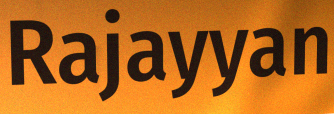
Rajayyan